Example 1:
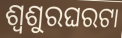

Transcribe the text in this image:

ଶ୍ୱଶୁରଘରଟା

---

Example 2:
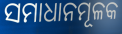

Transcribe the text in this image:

ସମାଧାନମୂଳକ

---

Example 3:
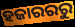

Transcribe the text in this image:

ହଜାରରରୁ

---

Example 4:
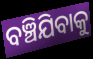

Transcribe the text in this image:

ବଞ୍ଚିଯିବାକୁ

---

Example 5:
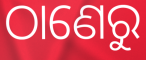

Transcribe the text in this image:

ଠାଣେରୁ